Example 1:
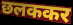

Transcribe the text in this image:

छलककर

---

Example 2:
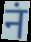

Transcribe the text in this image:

नं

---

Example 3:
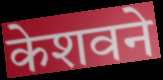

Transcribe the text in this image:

केशवने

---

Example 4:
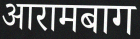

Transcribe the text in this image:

आरामबाग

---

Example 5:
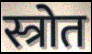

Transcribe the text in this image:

स्त्रोत